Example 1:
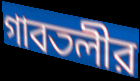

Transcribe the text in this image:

গাবতলীর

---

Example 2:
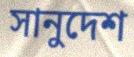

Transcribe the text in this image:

সানুদেশ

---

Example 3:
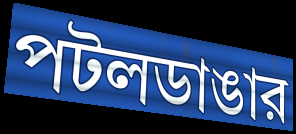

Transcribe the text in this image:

পটলডাঙার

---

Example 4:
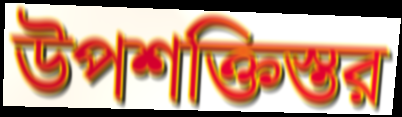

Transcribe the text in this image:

উপশক্তিস্তর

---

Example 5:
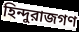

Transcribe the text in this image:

হিন্দুরাজগণ